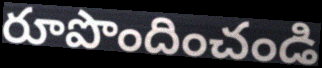
రూపొందించండి